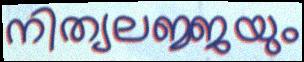
നിത്യലജ്ജയും